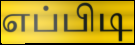
எப்பிடி